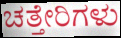
ಚತ್ತೇರಿಗಳು